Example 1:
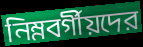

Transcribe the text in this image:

নিম্নবর্গীয়দের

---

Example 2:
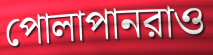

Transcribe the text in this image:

পোলাপানরাও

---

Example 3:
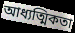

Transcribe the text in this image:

আধ্যত্মিকতা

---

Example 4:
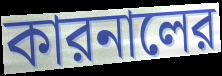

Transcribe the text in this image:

কারনালের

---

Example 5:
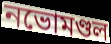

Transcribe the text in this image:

নভোমণ্ডল